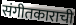
संगीतकाराची